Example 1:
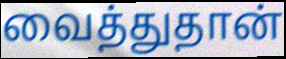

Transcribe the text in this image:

வைத்துதான்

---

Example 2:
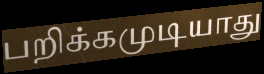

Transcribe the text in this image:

பறிக்கமுடியாது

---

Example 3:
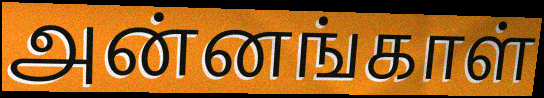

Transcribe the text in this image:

அன்னங்காள்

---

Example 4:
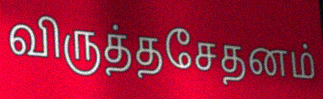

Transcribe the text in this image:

விருத்தசேதனம்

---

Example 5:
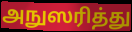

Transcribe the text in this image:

அநுஸரித்து